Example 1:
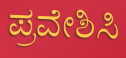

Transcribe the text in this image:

ಪ್ರವೇಶಿಸಿ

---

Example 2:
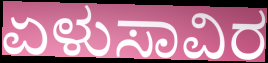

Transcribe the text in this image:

ಏಳುಸಾವಿರ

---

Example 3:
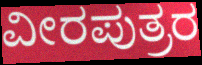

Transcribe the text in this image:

ವೀರಪುತ್ರರ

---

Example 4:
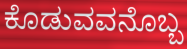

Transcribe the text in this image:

ಕೊಡುವವನೊಬ್ಬ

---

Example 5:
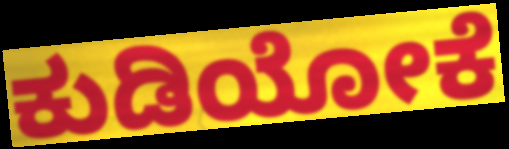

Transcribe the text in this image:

ಕುಡಿಯೋಕೆ